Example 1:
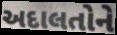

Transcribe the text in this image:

અદાલતોને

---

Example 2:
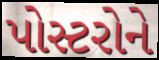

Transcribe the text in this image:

પોસ્ટરોને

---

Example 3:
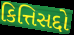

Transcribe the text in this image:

કિત્તિસદ્દો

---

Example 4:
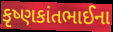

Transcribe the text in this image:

કૃષ્ણકાંતભાઈના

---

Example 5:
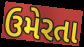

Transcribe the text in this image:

ઉમેરતા